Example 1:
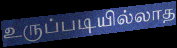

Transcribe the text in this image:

உருப்படியில்லாத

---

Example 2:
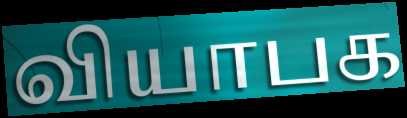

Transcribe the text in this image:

வியாபக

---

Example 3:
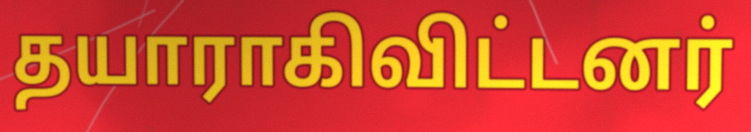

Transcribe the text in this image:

தயாராகிவிட்டனர்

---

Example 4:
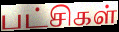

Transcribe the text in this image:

பட்சிகள்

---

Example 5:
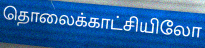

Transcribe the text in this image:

தொலைக்காட்சியிலோ